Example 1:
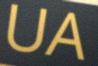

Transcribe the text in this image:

UA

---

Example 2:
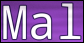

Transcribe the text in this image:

Mal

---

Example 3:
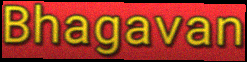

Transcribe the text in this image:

Bhagavan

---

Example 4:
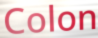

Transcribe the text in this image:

Colon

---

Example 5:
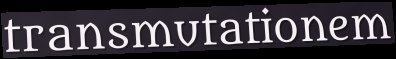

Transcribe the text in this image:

transmutationem